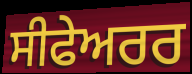
ਸੀਫੇਅਰਰ